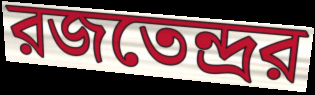
রজতেন্দ্রর